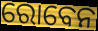
ରୋବେନ